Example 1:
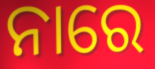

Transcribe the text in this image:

ନାରେ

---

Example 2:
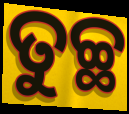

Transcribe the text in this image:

ତୁଚ୍ଛ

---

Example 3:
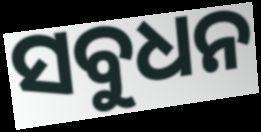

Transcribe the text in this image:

ସବୁଧନ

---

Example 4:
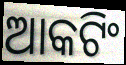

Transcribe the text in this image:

ଆକଟିଂ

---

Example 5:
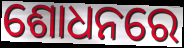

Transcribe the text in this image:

ଶୋଧନରେ